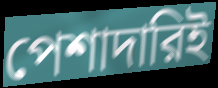
পেশাদারিই